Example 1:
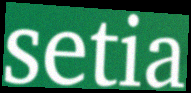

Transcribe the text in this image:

setia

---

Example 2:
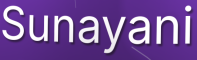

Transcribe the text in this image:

Sunayani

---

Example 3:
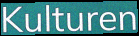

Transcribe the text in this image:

Kulturen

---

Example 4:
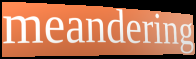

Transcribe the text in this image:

meandering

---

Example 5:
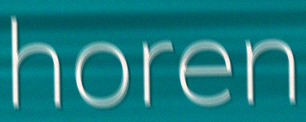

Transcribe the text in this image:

horen